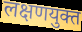
लक्षणयुक्त